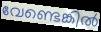
വേണ്ടെങ്കിൽ